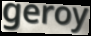
geroy